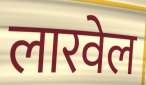
लारवेल